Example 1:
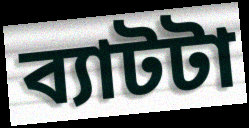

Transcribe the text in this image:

ব্যাটটা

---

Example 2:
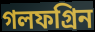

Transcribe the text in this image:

গলফগ্রিন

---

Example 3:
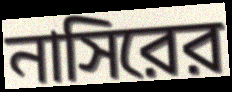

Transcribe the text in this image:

নাসিরের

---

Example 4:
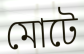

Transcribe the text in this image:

মোটে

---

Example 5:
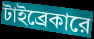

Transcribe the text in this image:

টাইব্রেকারে